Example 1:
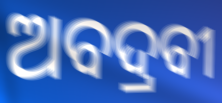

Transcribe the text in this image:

ଅବଦ୍ରବୀ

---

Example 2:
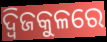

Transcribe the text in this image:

ଦ୍ୱିଜକୁଳରେ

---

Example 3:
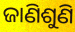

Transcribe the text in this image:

ଜାଣିଶୁଣି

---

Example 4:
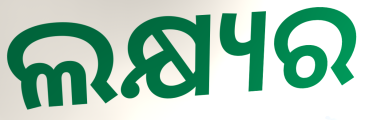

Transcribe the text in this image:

ଲକ୍ଷ୍ୟର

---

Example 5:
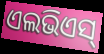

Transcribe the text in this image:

ଏଲଭିଏସ୍